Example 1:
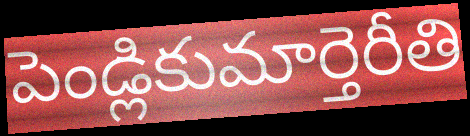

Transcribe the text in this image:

పెండ్లికుమార్తెరీతి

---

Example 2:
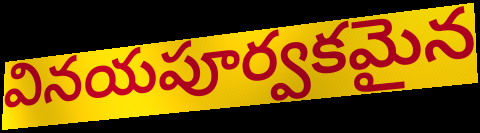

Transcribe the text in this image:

వినయపూర్వకమైన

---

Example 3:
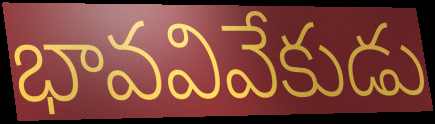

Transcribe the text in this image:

భావవివేకుడు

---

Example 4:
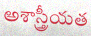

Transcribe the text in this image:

అశాస్త్రీయత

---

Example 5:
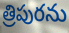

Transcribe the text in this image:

త్రిపురను